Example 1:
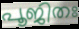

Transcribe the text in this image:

പൂജിതഃ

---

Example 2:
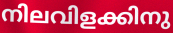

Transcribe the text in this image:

നിലവിളക്കിനു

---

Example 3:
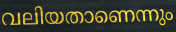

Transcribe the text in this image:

വലിയതാണെന്നും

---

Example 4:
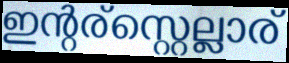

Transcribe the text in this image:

ഇന്റര്സ്റ്റെല്ലാര്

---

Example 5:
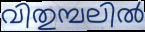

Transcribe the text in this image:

വിതുമ്പലിൽ